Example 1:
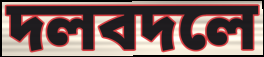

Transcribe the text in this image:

দলবদলে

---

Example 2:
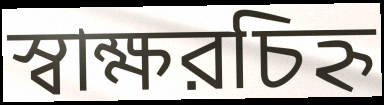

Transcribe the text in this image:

স্বাক্ষরচিহ্ন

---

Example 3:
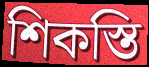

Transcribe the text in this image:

শিকস্তি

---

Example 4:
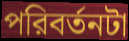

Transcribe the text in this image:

পরিবর্তনটা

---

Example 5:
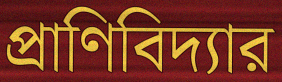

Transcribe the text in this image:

প্রাণিবিদ্যার